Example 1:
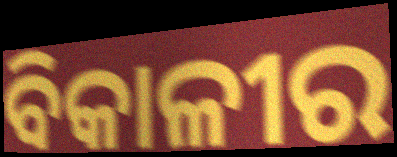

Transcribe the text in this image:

ବିକାଳୀର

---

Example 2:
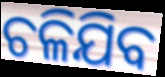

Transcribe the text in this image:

ଚଳିଯିବ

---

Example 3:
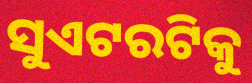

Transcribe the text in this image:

ସୁଏଟରଟିକୁ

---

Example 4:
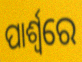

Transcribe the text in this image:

ପାର୍ଶ୍ଵରେ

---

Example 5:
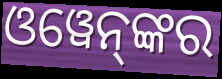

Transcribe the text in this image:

ଓୱେନ୍‌ଙ୍କର